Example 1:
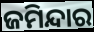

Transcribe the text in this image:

ଜମିନ୍ଦାର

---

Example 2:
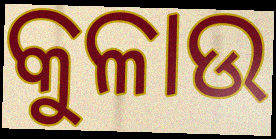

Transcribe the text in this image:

କୁଳାଉ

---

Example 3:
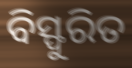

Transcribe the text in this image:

ବିସ୍ଫୁରିତ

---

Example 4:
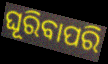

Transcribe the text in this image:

ଘୂରିବାପରି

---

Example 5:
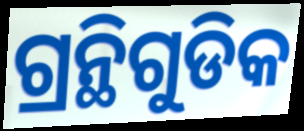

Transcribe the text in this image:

ଗ୍ରନ୍ଥିଗୁଡିକ